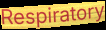
Respiratory